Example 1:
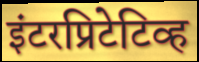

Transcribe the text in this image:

इंटरप्रिटेटिव्ह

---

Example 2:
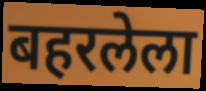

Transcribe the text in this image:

बहरलेला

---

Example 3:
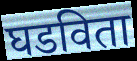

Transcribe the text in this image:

घडविता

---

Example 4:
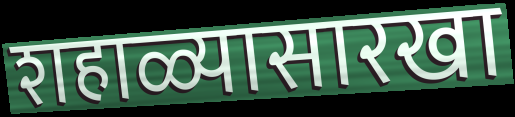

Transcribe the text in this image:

शहाळ्यासारखा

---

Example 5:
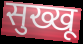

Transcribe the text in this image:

सुख्खू